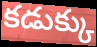
కడుక్కు